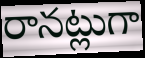
రానట్లుగా